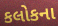
કલોકના